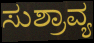
ಸುಶ್ರಾವ್ಯ